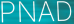
PNAD